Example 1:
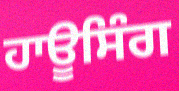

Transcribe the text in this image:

ਹਾਊਸਿੰਗ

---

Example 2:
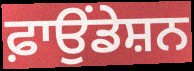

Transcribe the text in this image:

ਫ਼ਾਉਂਡੇਸ਼ਨ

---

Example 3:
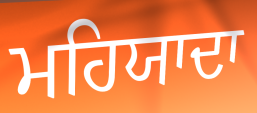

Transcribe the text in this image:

ਮਹਿਯਾਦਾ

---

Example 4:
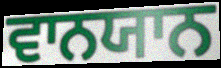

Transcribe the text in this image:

ਵਾਨਯਾਨ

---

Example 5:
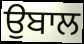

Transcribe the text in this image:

ਉਬਾਲ